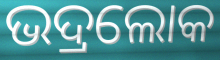
ଭଦ୍ରଲୋକ